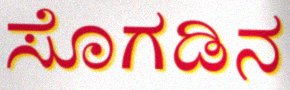
ಸೊಗಡಿನ